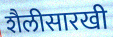
शैलीसारखी